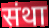
संथा